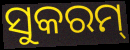
ସୁକରମ୍